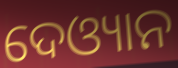
ଦେଓ୍ୟାନ